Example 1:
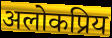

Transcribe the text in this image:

अलोकप्रिय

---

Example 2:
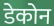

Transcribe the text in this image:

डेकोन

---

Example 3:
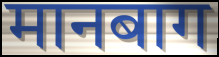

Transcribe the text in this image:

मानबाग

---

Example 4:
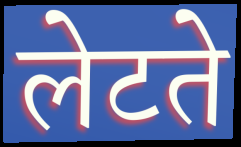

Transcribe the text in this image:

लेटते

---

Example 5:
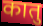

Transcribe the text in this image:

कातु